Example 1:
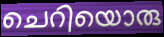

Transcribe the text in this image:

ചെറിയൊരു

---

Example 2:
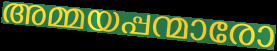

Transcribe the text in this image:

അമ്മയപ്പന്മാരോ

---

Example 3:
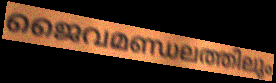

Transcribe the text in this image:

ജൈവമണ്ഡലത്തിലും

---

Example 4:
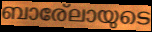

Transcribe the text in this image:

ബാര്ലോയുടെ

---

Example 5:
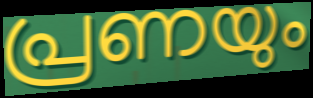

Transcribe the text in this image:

പ്രണയും